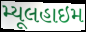
મ્યૂલહાઇમ